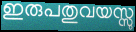
ഇരുപതുവയസ്സു